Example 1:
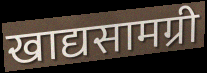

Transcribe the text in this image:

खाद्यसामग्री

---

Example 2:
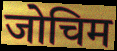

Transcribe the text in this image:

जोचिम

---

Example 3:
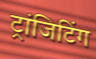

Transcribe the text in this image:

ट्रांजिटिंग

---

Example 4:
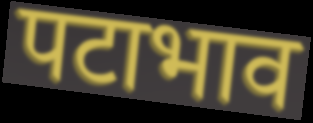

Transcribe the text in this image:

पटाभाव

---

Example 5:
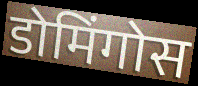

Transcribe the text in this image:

डोमिंगोस